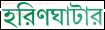
হরিণঘাটার